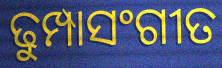
ଢୁମ୍ପାସଂଗୀତ